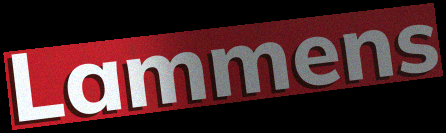
Lammens